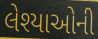
લેશ્યાઓની